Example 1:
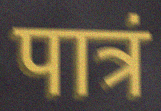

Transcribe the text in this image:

पात्रं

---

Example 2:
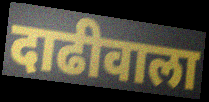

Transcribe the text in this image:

दाढीवाला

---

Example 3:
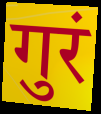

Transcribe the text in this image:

गुरं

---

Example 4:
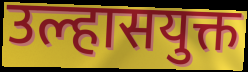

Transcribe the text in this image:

उल्हासयुक्त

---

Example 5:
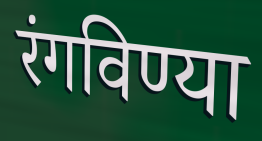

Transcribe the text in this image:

रंगविण्या